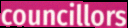
councillors